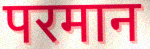
परमान